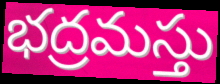
భద్రమస్తు